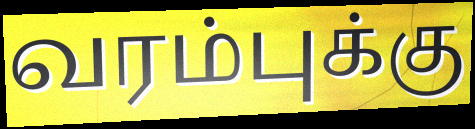
வரம்புக்கு